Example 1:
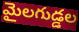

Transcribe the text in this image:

మైలగుడ్డల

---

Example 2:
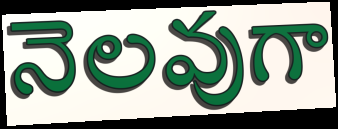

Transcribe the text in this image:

నెలవుగా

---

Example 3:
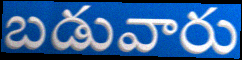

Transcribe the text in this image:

బడువారు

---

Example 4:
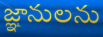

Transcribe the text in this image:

జ్ఞానులను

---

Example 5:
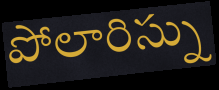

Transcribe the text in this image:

పోలారిస్ను